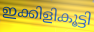
ഇക്കിളികൂട്ടി